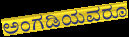
ಅಂಗಡಿಯವರೂ